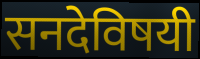
सनदेविषयी